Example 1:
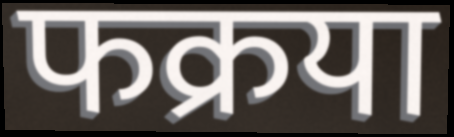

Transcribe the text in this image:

फक्रया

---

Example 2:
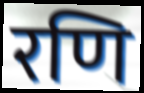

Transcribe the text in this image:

रणि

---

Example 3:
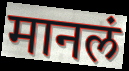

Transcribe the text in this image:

मानलं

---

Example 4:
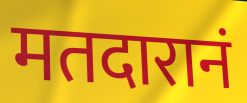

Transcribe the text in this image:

मतदारानं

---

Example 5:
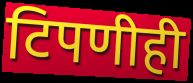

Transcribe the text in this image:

टिपणीही